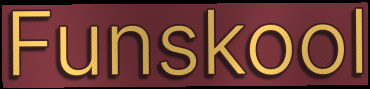
Funskool